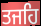
ਤਜਹਿ